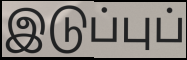
இடுப்புப்